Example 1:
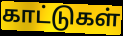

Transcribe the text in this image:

காட்டுகள்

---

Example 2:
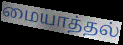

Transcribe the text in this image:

மையாத்தல்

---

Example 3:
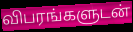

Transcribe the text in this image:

விபரங்களுடன்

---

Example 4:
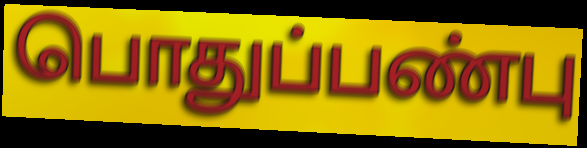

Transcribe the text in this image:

பொதுப்பண்பு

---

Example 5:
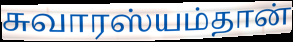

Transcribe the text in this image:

சுவாரஸ்யம்தான்